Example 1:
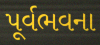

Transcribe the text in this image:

પૂર્વભવના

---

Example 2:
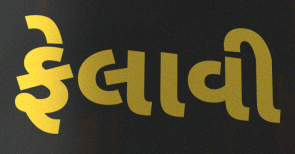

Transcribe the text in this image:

ફેલાવી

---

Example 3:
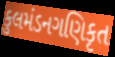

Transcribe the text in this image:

કુલમંડનગણિકૃત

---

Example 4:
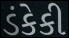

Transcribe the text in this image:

ડંકેકી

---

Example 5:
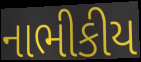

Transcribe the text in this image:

નાભીકીય